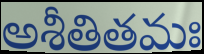
అశీతితమః